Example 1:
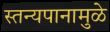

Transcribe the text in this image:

स्तन्यपानामुळे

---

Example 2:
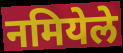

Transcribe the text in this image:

नमियेले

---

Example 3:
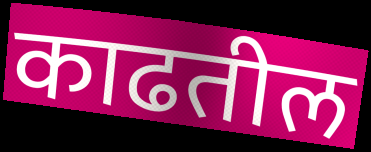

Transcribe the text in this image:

काढतील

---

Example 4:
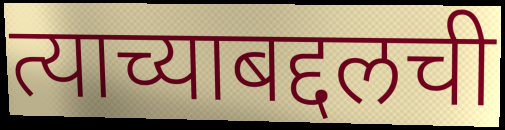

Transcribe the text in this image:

त्याच्याबद्दलची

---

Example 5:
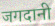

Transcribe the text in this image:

जगदानी